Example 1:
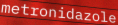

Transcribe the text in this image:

metronidazole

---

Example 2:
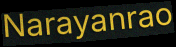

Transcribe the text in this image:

Narayanrao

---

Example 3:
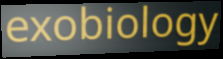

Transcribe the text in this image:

exobiology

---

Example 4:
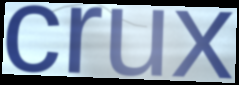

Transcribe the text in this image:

crux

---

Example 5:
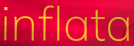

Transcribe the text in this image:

inflata